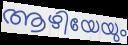
ആഴിയേയും